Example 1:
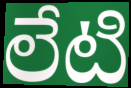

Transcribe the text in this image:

లేటి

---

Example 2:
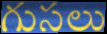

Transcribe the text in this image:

గుసలు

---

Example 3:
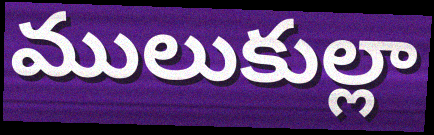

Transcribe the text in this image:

ములుకుల్లా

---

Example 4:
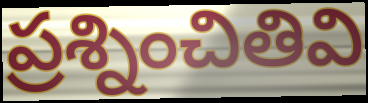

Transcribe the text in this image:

ప్రశ్నించితివి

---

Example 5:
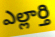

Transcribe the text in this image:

ఎల్లార్తి